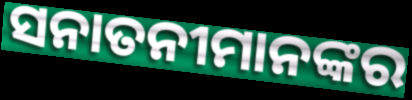
ସନାତନୀମାନଙ୍କର